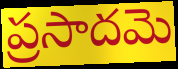
ప్రసాదమె